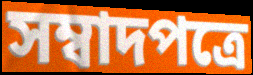
সম্বাদপত্রে